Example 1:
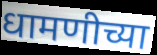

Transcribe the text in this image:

धामणीच्या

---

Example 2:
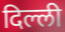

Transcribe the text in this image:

दिल्‍ली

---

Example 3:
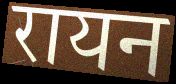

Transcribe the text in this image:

रायन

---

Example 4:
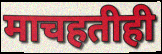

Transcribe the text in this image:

माचहतीही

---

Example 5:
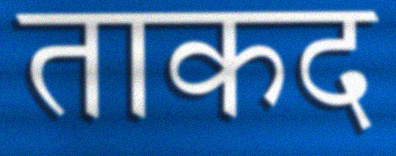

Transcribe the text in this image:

ताकद